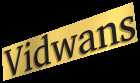
Vidwans